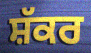
ਸ਼ੱਕਰ